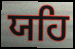
ਯਹਿ